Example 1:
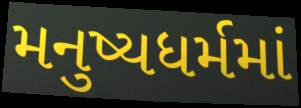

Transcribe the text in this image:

મનુષ્યધર્મમાં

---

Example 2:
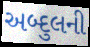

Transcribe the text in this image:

અબ્દુલની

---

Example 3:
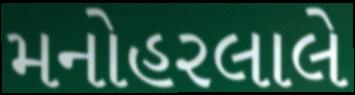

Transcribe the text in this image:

મનોહરલાલે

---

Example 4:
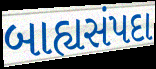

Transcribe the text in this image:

બાહ્યસંપદા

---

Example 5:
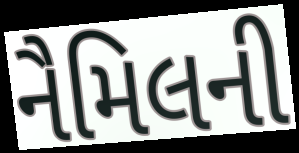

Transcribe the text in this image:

નૈમિલની